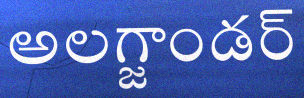
అలగ్జాండర్